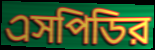
এসপিডির